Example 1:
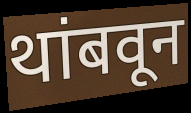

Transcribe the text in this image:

थांबवून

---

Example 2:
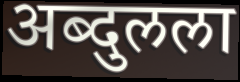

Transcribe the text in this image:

अब्दुलला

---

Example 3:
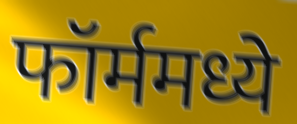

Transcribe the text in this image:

फॉर्ममध्ये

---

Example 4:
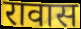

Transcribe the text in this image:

रावास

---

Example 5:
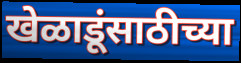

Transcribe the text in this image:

खेळाडूंसाठीच्या